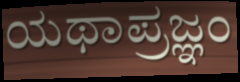
ಯಥಾಪ್ರಜ್ಞಂ